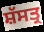
ਸ਼ੱਸਤ੍ਰ